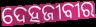
ଦେହଜୀବୀର